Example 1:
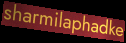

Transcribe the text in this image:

sharmilaphadke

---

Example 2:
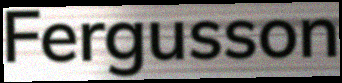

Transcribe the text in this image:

Fergusson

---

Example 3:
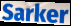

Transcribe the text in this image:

Sarker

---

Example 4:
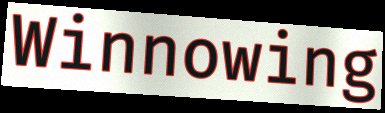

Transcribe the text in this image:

Winnowing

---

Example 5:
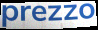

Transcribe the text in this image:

prezzo